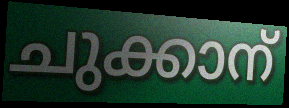
ചുക്കാന്